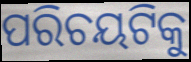
ପରିଚୟଟିକୁ